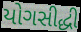
યોગસીદ્ધી